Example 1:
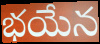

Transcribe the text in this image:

భయేన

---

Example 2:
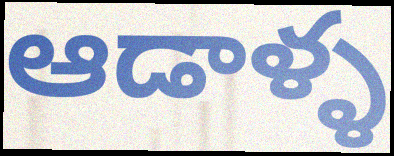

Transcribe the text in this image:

ఆడాళ్ళ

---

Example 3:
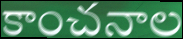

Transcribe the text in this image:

కాంచనాల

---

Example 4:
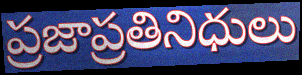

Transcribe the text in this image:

ప్రజాప్రతినిధులు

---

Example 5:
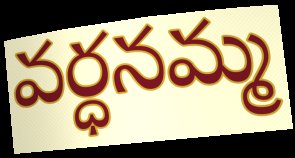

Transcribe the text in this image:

వర్ధనమ్మ